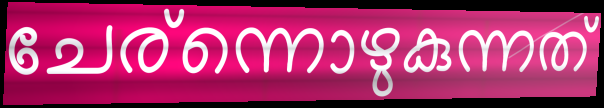
ചേര്ന്നൊഴുകുന്നത്